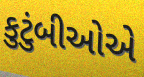
કુટુંબીઓએ